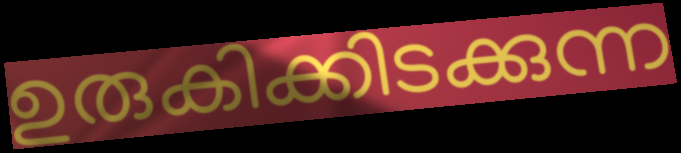
ഉരുകിക്കിടക്കുന്ന